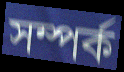
সম্পর্ক